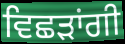
ਵਿਛੜਾਂਗੀ